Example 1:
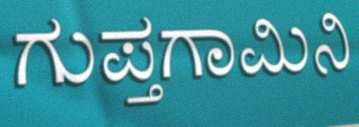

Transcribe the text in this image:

ಗುಪ್ತಗಾಮಿನಿ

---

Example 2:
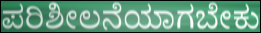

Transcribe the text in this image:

ಪರಿಶೀಲನೆಯಾಗಬೇಕು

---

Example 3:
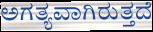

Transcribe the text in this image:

ಅಗತ್ಯವಾಗಿರುತ್ತದೆ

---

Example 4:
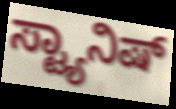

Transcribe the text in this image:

ಸ್ಟ್ಯಾನಿಷ್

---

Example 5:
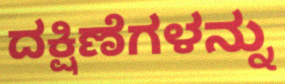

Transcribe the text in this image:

ದಕ್ಷಿಣೆಗಳನ್ನು